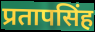
प्रतापसिंह